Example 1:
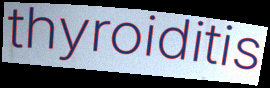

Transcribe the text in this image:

thyroiditis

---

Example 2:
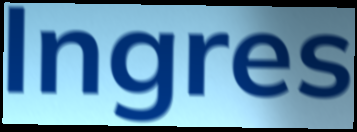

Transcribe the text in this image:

Ingres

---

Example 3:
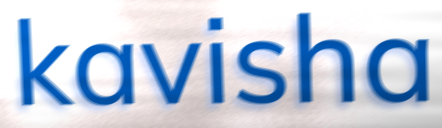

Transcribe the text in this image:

kavisha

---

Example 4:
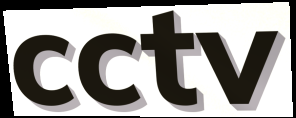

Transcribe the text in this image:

cctv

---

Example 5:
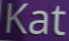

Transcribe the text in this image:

Kat